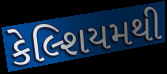
કેલ્શિયમથી